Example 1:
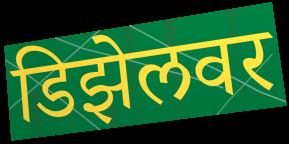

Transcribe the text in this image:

डिझेलवर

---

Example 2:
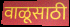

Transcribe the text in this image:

वाळूसाठी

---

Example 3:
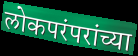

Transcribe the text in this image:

लोकपरंपरांच्या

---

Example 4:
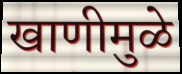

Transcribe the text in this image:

खाणीमुळे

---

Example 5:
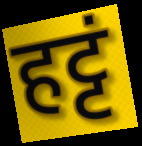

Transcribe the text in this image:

हट्टं